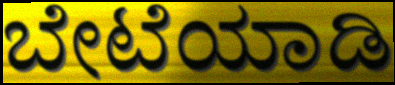
ಬೇಟೆಯಾಡಿ